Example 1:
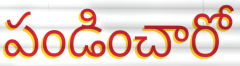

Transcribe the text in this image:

పండించారో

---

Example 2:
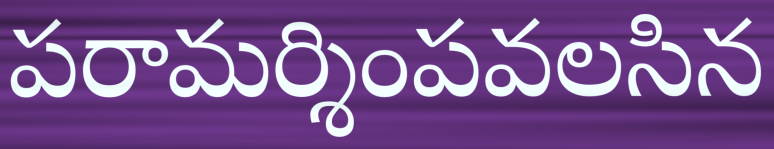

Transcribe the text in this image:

పరామర్శింపవలసిన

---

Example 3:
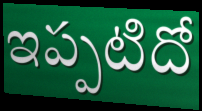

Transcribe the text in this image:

ఇప్పటిదో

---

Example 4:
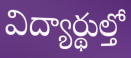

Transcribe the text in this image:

విద్యార్థుల్తో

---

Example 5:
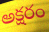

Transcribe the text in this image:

అక్షరం